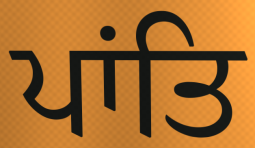
ਪਾਂਤਿ